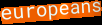
europeans